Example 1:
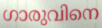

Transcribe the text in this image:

ഗാരുവിനെ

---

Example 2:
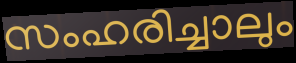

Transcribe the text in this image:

സംഹരിച്ചാലും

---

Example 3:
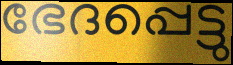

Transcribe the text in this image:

ഭേദപ്പെട്ടു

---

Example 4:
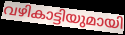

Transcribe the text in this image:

വഴികാട്ടിയുമായി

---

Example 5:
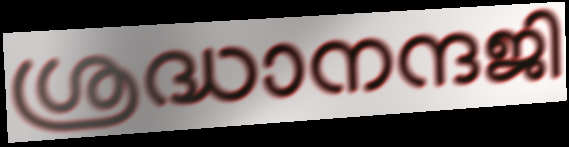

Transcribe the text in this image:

ശ്രദ്ധാനന്ദജി